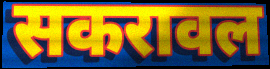
सकरावल